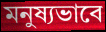
মনুষ্যভাবে